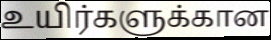
உயிர்களுக்கான